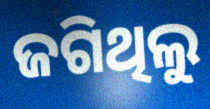
ଜଗିଥିଲୁ